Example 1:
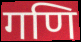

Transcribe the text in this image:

गणि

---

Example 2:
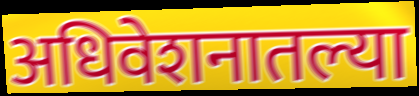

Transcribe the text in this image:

अधिवेशनातल्या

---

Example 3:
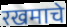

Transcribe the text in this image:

रखमाचे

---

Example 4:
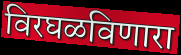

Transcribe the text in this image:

विरघळविणारा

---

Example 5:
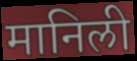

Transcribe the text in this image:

मानिली